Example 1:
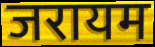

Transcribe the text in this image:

जरायम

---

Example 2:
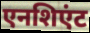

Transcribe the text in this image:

एनशिएंट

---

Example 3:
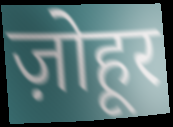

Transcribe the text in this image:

ज़ोहूर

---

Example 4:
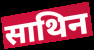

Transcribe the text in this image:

साथिन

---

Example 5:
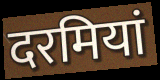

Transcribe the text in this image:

दरमियां